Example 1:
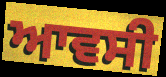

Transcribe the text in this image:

ਆਵਸੀ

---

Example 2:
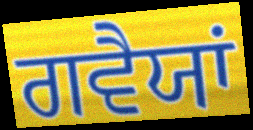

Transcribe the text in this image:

ਗਵੈਯਾਂ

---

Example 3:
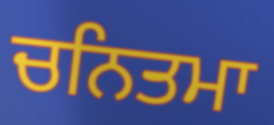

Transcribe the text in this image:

ਚਨਿਤਮਾ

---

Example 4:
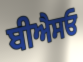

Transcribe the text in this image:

ਬੀਐਸਓ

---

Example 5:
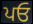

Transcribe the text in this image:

ਪਓ